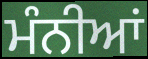
ਮੰਨੀਆਂ